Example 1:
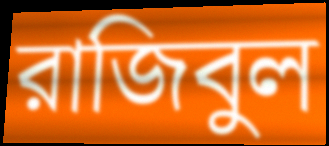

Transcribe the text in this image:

রাজিবুল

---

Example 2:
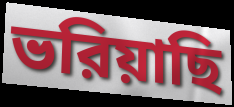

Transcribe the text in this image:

ভরিয়াছি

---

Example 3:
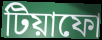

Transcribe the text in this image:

টিয়াফো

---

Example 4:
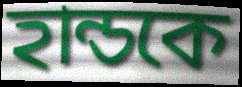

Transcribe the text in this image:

হান্ডকে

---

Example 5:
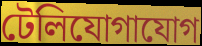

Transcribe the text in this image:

টেলিযোগাযোগ